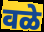
वळे